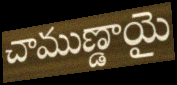
చాముణ్డాయై